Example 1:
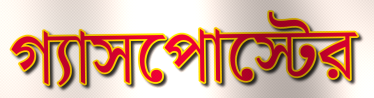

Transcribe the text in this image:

গ্যাসপোস্টের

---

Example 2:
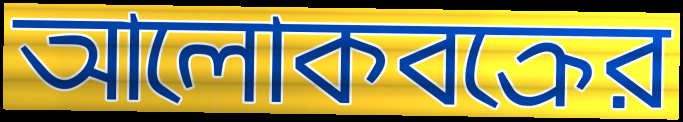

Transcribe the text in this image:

আলোকবক্রের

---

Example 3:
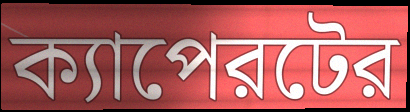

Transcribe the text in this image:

ক্যাপেরটের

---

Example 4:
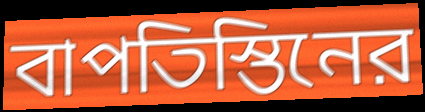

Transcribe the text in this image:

বাপতিস্তিনের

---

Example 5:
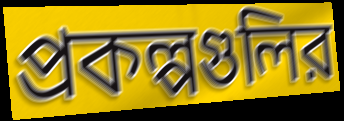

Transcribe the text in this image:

প্রকল্পগুলির